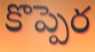
కొప్పెర